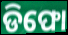
ଡିଫୋ